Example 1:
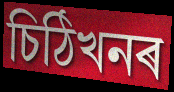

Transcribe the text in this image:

চিঠিখনৰ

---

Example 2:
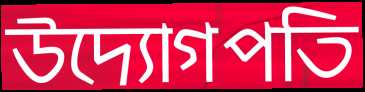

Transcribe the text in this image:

উদ্যোগপতি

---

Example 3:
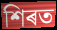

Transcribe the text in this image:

শিৰত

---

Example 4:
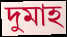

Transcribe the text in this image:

দুমাহ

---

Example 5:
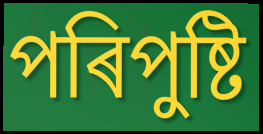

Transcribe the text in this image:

পৰিপুষ্টি